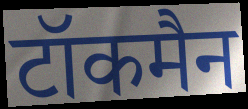
टॉकमैन